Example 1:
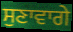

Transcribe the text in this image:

ਸੁਣਾਵਾਗੇ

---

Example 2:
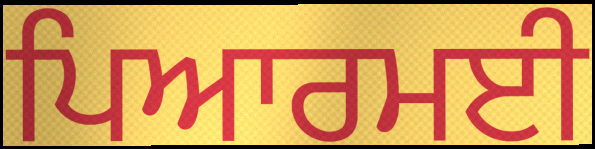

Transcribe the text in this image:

ਪਿਆਰਮਈ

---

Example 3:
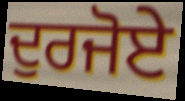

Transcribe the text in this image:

ਦੁਰਜੋਏ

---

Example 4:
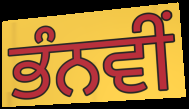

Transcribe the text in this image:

ਭੰਨਵੀਂ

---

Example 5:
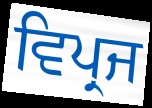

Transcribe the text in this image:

ਵਿਪ੍ਰਜ